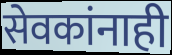
सेवकांनाही